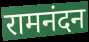
रामनंदन